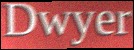
Dwyer